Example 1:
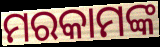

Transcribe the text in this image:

ମରକାମଙ୍କ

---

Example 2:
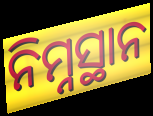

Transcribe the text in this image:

ନିମ୍ନସ୍ଥାନ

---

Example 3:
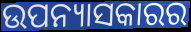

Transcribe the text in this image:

ଉପନ୍ୟାସକାରର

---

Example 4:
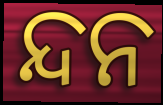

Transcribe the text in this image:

ନ୍ଦନ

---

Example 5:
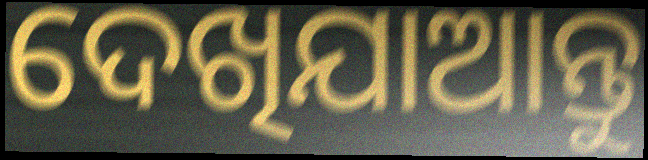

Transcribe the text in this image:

ଦେଖିଯାଆନ୍ତୁ